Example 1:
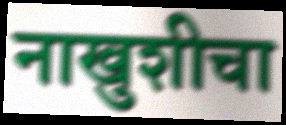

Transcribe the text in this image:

नाखुशीचा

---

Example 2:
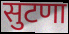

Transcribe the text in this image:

सुटणा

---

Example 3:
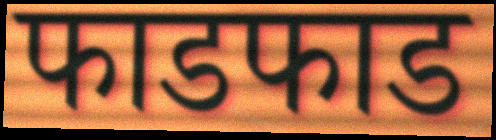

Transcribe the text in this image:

फाडफाड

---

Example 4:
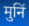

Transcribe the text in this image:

मुनिं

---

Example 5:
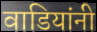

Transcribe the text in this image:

वाडियांनी